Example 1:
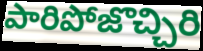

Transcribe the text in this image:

పారిపోజొచ్చిరి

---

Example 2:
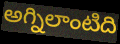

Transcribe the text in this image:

అగ్నిలాంటిది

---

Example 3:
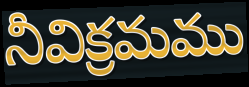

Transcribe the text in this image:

నీవిక్రమము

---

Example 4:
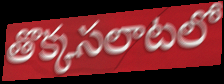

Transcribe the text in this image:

తొక్కసలాటలో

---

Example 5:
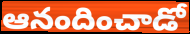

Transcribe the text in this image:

ఆనందించాడో